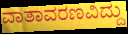
ವಾತಾವರಣವಿದ್ದು